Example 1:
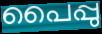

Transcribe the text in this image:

പൈപ്പു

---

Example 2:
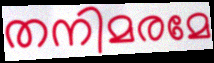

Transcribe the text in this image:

തനിമരമേ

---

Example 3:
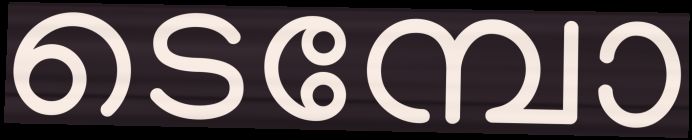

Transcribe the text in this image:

ടെമ്പോ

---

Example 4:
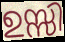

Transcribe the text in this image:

ഉസ്സി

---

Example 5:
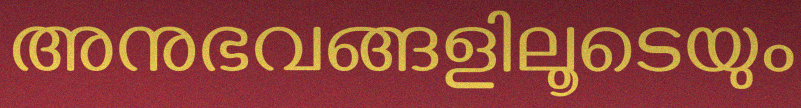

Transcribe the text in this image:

അനുഭവങ്ങളിലൂടെയും